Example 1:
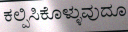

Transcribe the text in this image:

ಕಲ್ಪಿಸಿಕೊಳ್ಳುವುದೂ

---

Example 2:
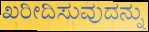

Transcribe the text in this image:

ಖರೀದಿಸುವುದನ್ನು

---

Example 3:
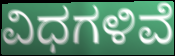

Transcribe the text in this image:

ವಿಧಗಳಿವೆ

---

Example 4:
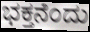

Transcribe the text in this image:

ಭಕ್ತನೆಂದು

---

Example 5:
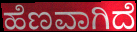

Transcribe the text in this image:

ಹೆಣವಾಗಿದೆ